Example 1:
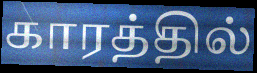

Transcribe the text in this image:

காரத்தில்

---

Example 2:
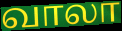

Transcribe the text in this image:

வாலா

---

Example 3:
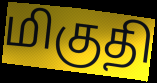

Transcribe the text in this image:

மிகுதி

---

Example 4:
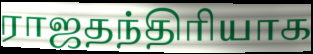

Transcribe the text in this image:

ராஜதந்திரியாக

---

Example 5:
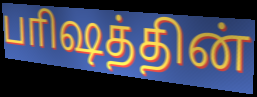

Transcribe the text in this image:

பரிஷத்தின்